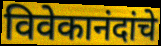
विवेकानंदांचे